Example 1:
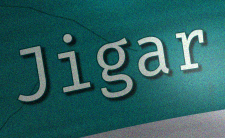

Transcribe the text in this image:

Jigar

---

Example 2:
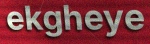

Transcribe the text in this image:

ekgheye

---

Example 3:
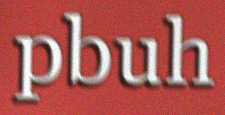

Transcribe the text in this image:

pbuh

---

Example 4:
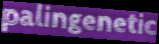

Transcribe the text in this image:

palingenetic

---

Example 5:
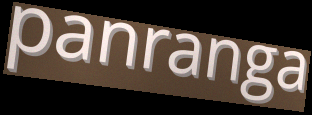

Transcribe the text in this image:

panranga